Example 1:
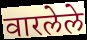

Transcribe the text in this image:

वारलेले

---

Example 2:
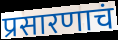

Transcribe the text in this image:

प्रसारणाचं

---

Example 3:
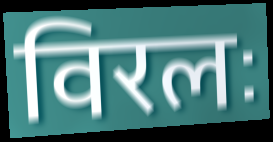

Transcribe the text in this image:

विरलः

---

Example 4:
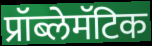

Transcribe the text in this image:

प्रॉब्लेमॅटिक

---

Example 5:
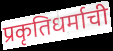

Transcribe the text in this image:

प्रकृतिधर्माची